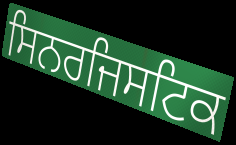
ਸਿਨਰਜਿਸਟਿਕ